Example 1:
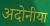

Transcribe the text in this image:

अदोनीया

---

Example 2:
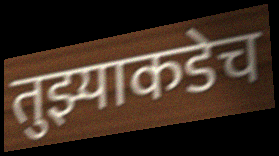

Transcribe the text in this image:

तुझ्याकडेच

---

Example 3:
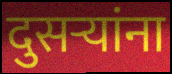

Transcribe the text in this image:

दुसऱ्यांना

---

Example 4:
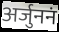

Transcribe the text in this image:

अर्जुननं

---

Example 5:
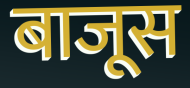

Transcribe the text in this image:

बाजूस